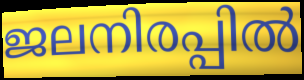
ജലനിരപ്പിൽ